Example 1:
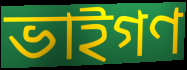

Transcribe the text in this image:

ভাইগণ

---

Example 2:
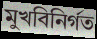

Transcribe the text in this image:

মুখবিনির্গত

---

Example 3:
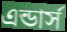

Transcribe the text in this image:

এন্ডার্স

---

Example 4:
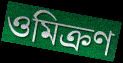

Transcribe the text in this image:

ওমিক্রণ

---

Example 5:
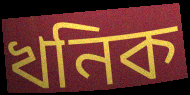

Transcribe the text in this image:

খনিক